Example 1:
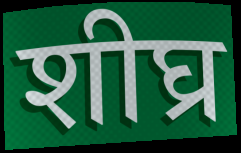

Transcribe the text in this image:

शीघ्र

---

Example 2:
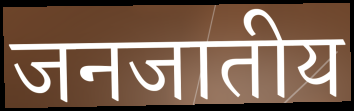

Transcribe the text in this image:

जनजातीय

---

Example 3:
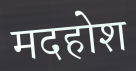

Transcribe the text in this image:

मदहोश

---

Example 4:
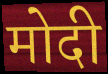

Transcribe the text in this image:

मोदी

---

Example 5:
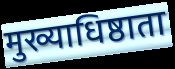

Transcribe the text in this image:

मुख्याधिष्ठाता